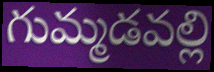
గుమ్మడవల్లి